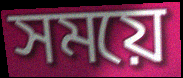
সময়ে